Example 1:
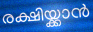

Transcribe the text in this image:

രക്ഷിയ്ക്കാൻ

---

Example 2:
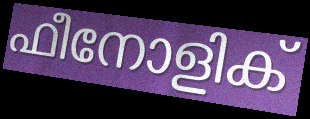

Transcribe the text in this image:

ഫീനോളിക്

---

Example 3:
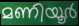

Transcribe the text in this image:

മണിയൂർ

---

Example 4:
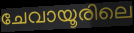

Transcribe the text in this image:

ചേവായൂരിലെ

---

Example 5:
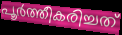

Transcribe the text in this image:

പൂർത്തീകരിച്ചത്